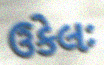
ઉકેલઃ